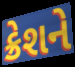
ક્રેશને